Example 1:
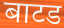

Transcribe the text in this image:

बाटड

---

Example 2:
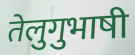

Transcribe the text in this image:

तेलुगुभाषी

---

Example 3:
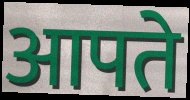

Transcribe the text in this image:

आपते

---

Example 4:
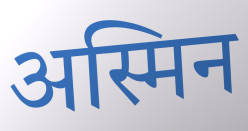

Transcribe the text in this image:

अस्मिन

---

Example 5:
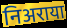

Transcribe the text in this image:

निअराया